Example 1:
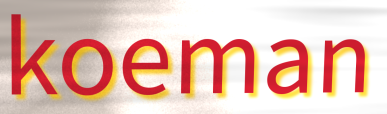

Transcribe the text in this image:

koeman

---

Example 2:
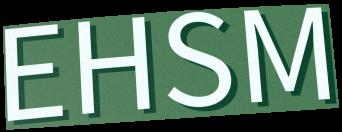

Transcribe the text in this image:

EHSM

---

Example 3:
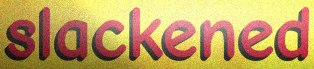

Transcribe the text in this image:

slackened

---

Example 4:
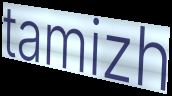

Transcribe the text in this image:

tamizh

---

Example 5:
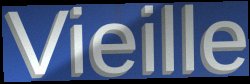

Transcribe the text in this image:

Vieille